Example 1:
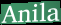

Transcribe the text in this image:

Anila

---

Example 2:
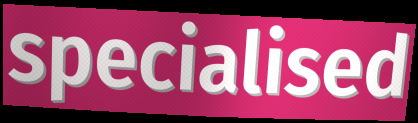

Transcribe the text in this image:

specialised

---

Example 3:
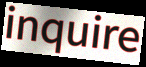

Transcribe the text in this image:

inquire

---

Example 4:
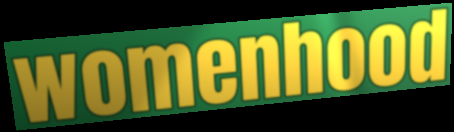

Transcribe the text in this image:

womenhood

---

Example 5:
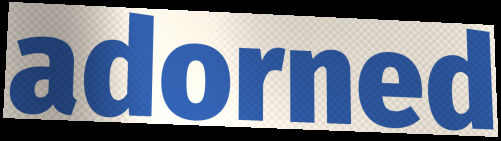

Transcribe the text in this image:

adorned